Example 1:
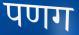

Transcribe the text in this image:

पणग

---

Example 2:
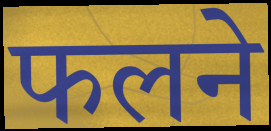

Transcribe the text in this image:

फलने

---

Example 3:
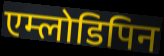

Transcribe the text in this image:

एम्लोडिपिन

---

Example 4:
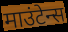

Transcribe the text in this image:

माउंटेन्स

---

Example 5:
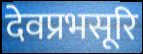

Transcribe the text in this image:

देवप्रभसूरि